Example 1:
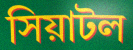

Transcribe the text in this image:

সিয়াটল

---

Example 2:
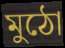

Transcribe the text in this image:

মুঠো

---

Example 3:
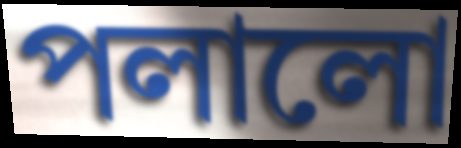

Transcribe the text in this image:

পলালো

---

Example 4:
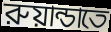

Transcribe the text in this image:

রুয়ান্ডাতে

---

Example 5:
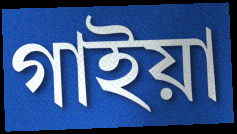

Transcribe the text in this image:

গাইয়া